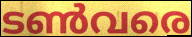
ടൺവരെ